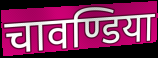
चावण्डिया